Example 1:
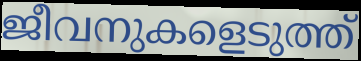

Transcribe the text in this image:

ജീവനുകളെടുത്ത്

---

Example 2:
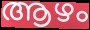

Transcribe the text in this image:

ആഴം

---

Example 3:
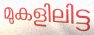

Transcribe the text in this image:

മുകളിലിട്ട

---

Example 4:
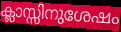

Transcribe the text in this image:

ക്ലാസ്സിനുശേഷം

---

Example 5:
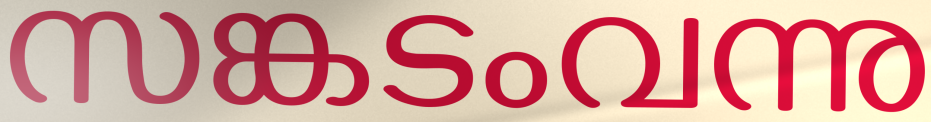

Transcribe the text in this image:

സങ്കടംവന്നു